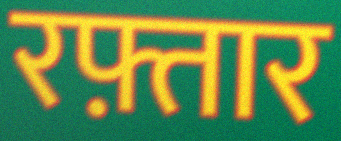
रफ़्तार